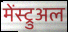
मेंस्ट्रुअल